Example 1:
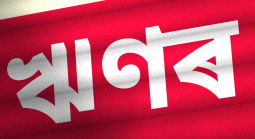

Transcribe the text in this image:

ঋণৰ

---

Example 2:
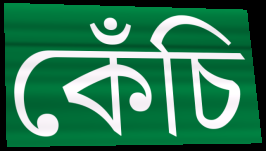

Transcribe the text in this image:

কেঁচি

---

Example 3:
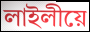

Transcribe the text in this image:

লাইলীয়ে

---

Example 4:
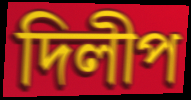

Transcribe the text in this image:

দিলীপ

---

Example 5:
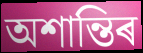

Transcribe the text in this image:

অশান্তিৰ